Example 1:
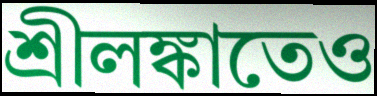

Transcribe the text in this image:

শ্রীলঙ্কাতেও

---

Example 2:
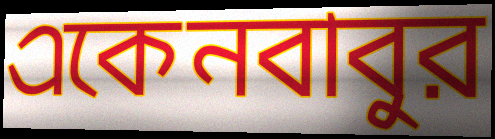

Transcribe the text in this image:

একেনবাবুর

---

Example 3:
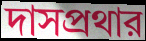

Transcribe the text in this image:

দাসপ্রথার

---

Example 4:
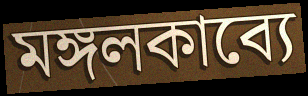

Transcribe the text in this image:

মঙ্গলকাব্যে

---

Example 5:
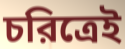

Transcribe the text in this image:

চরিত্রেই